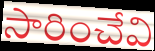
సారించేవి